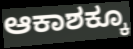
ಆಕಾಶಕ್ಕೂ